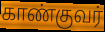
காண்குவர்